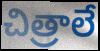
చిత్రాలే